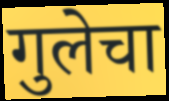
गुलेचा